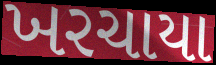
ખરચાયા